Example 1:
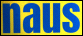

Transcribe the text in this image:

naus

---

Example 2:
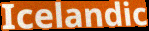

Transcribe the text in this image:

Icelandic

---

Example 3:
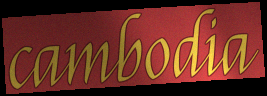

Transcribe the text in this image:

cambodia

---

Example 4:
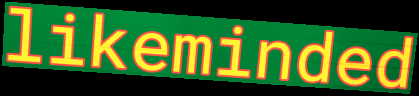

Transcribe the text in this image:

likeminded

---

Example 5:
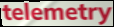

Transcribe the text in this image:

telemetry